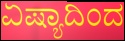
ಏಷ್ಯಾದಿಂದ